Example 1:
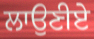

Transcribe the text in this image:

ਲਾਉਣੀਏ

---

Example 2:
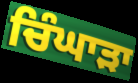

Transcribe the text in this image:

ਚਿੰਘਾੜਾ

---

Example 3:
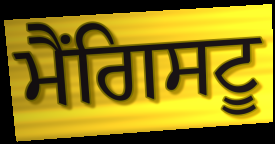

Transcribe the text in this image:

ਮੈਂਗਿਸਟੂ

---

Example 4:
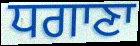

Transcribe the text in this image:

ਧਗਾਣਾ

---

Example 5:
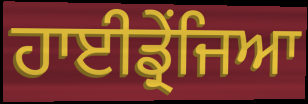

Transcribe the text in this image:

ਹਾਈਡ੍ਰੇਂਜਿਆ